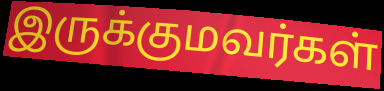
இருக்குமவர்கள்